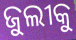
ଜୁଲୀକୁ